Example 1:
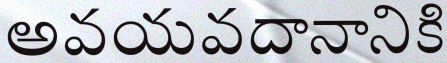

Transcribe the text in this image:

అవయవదానానికి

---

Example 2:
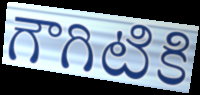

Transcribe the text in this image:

గౌగిటికి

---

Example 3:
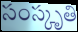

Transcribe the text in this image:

సంస్కృతి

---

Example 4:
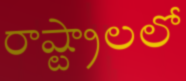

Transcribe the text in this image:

రాష్ట్రాలలో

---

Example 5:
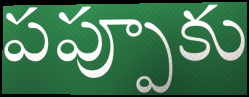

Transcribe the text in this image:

పప్పూకు